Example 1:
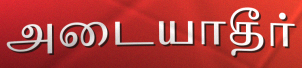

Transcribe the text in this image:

அடையாதீர்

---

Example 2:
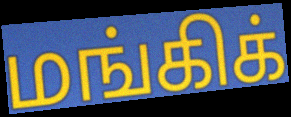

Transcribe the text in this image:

மங்கிக்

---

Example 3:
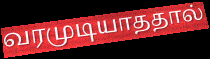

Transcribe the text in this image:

வரமுடியாததால்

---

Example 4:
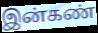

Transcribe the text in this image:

இன்கண்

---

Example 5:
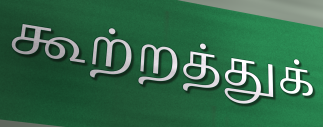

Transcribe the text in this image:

கூற்றத்துக்